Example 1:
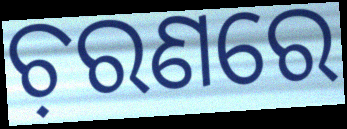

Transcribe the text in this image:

ଚ଼ରଣରେ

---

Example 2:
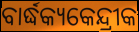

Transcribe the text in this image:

ବାର୍ଦ୍ଧକ୍ୟକେନ୍ଦ୍ରୀକ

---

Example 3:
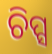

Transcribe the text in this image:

ଚିପ୍ସ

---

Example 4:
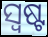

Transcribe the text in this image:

ସ୍ୱଷ୍ଟ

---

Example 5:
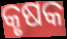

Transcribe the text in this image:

କୃଷକ